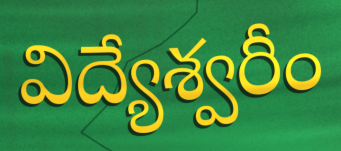
విద్యేశ్వరీం